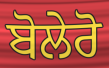
ਬੋਲੇਰੋ